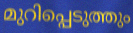
മുറിപ്പെടുത്തും